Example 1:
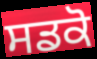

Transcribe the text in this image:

ਸਡਕੋ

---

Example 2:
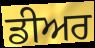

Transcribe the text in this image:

ਡੀਅਰ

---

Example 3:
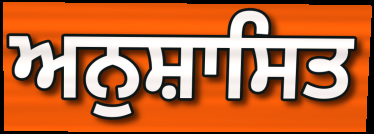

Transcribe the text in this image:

ਅਨੁਸ਼ਾਸਿਤ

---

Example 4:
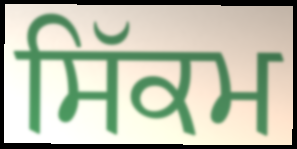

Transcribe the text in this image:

ਸਿੱਕਮ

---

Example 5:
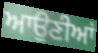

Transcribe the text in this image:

ਆਉਣੀਆਂ